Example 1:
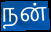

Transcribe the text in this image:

நன்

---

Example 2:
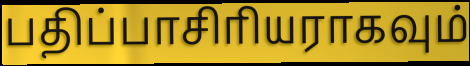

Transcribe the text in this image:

பதிப்பாசிரியராகவும்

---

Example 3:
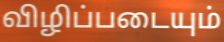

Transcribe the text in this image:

விழிப்படையும்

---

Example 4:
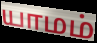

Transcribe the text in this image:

யாமம்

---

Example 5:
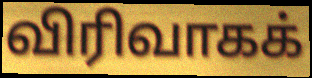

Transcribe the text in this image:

விரிவாகக்